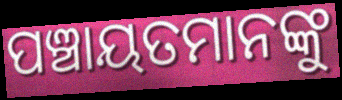
ପଞ୍ଚାୟତମାନଙ୍କୁ